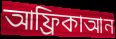
আফ্রিকাআন